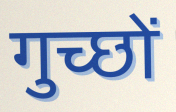
गुच्छों